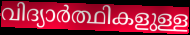
വിദ്യാർത്ഥികളുള്ള